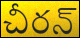
చీరన్